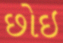
છોઇ